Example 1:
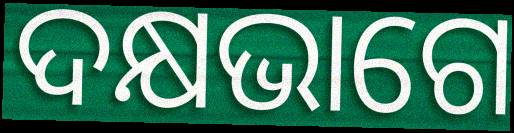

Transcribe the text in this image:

ଦକ୍ଷଭାଗେ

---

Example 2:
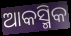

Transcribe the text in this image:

ଆକସ୍ମିକ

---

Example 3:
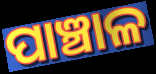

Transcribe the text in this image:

ପାଞ୍ଚାଳ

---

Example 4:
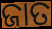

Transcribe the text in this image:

ଜାତ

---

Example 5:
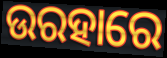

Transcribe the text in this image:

ଉରହାରେ